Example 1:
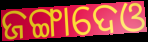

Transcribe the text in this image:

ଜଙ୍ଗାଦେଓ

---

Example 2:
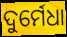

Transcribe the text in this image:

ଦୁର୍ମେଧା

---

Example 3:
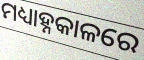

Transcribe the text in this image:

ମଧ୍ୟାହ୍ନକାଳରେ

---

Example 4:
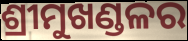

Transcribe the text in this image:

ଶ୍ରୀମୁଖଣ୍ଡଳର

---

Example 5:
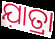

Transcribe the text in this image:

ଯ଼ାତ୍ରା